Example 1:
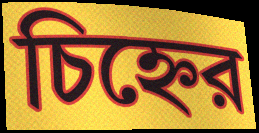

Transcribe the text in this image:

চিহ্নের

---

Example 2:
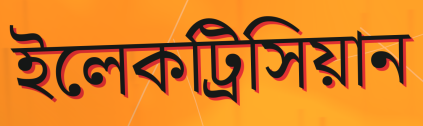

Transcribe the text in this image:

ইলেকট্রিসিয়ান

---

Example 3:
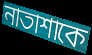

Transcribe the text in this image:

নাতাশাকে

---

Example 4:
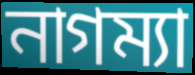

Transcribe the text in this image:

নাগম্যা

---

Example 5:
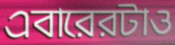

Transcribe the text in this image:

এবারেরটাও